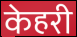
केहरी